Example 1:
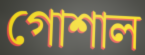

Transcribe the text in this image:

গোশাল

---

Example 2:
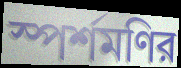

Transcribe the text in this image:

স্পর্শমণির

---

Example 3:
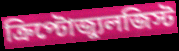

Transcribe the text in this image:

ক্রিপ্টোজ্যুলজিস্ট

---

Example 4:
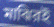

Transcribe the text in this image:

মাঝিরই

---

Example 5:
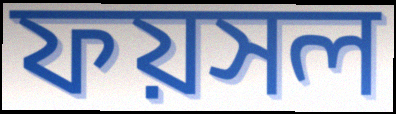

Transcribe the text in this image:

ফয়সল